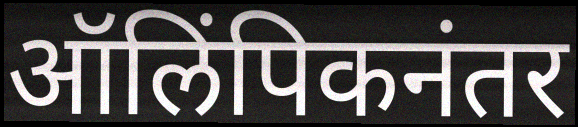
ऑलिंपिकनंतर